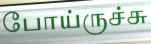
போய்ருச்சு